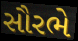
સૌરભે